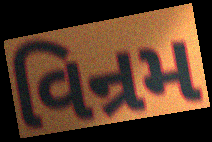
વિન્રમ